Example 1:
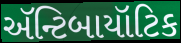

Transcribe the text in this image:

ઍન્ટિબાયૉટિક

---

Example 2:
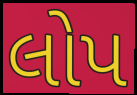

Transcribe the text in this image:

લોપ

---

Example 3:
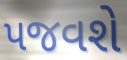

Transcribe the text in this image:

પજવશે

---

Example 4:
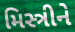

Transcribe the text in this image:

મિસ્ત્રીને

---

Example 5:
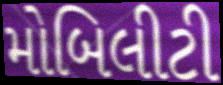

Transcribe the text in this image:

મોબિલીટી